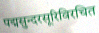
पद्मसुन्दरसूरिविरचित